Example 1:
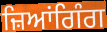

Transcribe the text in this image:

ਜ਼ਿਆਂਗਿੰਗ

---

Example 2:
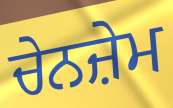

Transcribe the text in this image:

ਚੇਨਜ਼ੇਮ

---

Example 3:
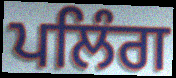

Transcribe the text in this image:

ਪਲਿੰਗ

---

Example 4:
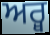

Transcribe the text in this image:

ਅਰ੍ਥ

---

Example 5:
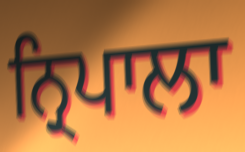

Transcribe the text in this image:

ਨ੍ਰਿਪਾਲਾ